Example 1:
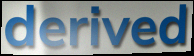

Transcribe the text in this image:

derived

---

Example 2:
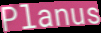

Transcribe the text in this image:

Planus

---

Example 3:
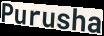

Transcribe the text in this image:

Purusha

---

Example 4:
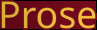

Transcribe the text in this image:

Prose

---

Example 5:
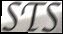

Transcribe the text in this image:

STS